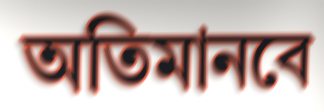
অতিমানবে